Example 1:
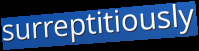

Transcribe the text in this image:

surreptitiously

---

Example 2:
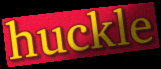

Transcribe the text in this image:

huckle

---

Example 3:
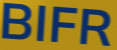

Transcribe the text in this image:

BIFR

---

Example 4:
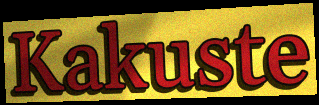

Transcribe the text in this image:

Kakuste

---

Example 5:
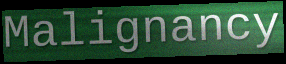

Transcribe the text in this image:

Malignancy